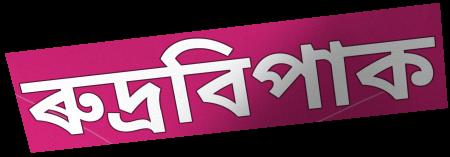
ৰুদ্ৰবিপাক